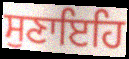
ਸੁਣਾਇਹਿ